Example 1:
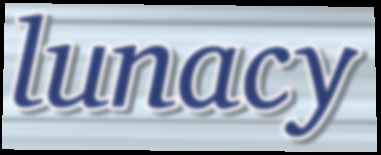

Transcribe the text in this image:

lunacy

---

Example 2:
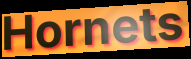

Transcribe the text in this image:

Hornets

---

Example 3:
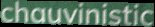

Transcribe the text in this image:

chauvinistic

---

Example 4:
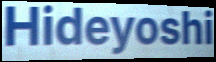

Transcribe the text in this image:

Hideyoshi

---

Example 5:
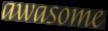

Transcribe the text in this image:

awasome